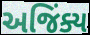
અજિંક્ય